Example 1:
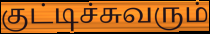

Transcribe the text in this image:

குட்டிச்சுவரும்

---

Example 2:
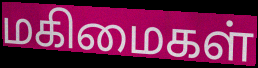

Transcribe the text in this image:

மகிமைகள்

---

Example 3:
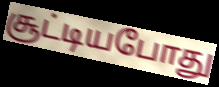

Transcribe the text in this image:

சூட்டியபோது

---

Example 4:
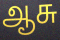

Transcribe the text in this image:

ஆசு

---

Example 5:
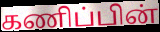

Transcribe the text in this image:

கணிப்பின்